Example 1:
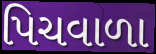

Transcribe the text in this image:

પિચવાળા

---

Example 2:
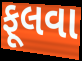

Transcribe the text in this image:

ફૂલવા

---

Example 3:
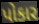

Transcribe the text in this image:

પોકાર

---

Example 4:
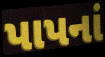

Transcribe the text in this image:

પાપનાં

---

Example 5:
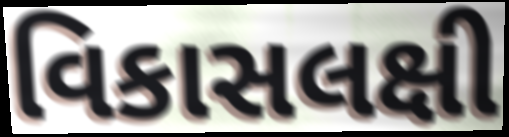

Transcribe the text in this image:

વિકાસલક્ષી